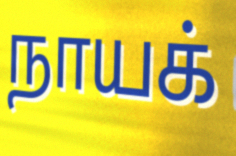
நாயக்